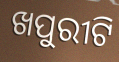
ଖପୁରୀଟି